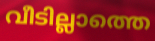
വീടില്ലാത്തെ